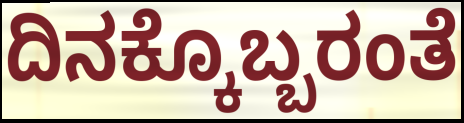
ದಿನಕ್ಕೊಬ್ಬರಂತೆ